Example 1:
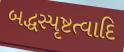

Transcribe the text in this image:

બદ્ધસ્પૃષ્ટત્વાદિ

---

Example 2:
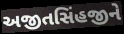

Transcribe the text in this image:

અજીતસિંહજીને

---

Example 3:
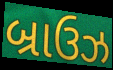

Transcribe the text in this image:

બ્રાઉઝ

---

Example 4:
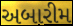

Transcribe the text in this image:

અબારીમ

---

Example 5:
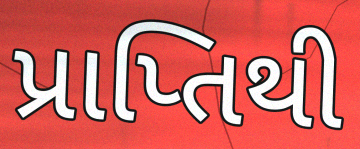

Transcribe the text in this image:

પ્રાપ્તિથી